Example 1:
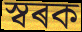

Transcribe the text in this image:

স্বৰক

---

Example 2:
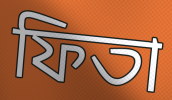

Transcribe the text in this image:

ফিতা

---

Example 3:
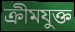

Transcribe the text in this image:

ক্ৰীমযুক্ত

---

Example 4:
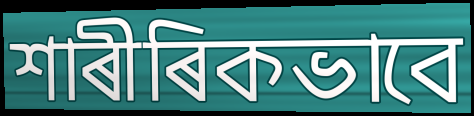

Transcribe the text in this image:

শাৰীৰিকভাবে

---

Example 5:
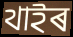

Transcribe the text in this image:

থাইৰ